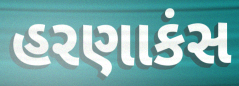
હરણાકંસ